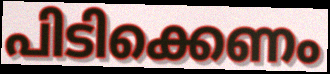
പിടിക്കെണം